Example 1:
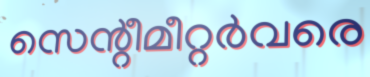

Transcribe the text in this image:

സെന്റീമീറ്റർവരെ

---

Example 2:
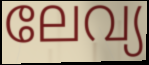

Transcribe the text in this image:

ലേവ്യ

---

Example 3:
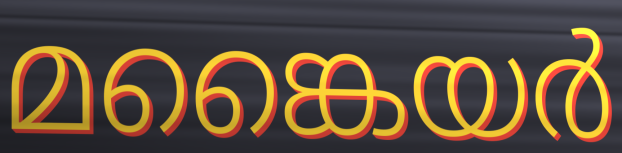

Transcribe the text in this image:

മങ്കൈയർ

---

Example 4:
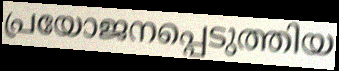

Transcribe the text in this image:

പ്രയോജനപ്പെടുത്തിയ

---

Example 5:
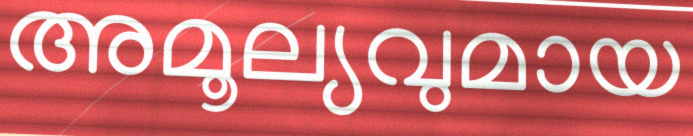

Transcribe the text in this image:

അമൂല്യവുമായ